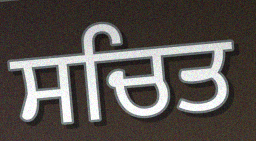
ਸਚਿਤ